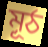
মূঠ